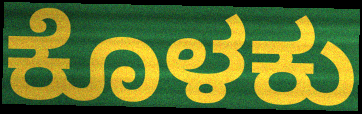
ಕೊಳಕು